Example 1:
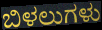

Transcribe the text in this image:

ಬಿಳಲುಗಳು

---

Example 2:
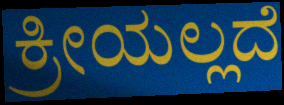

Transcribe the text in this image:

ಕ್ರೀಯಲ್ಲದೆ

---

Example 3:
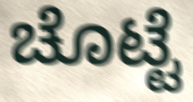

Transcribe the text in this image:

ಚೊಟ್ಟೆ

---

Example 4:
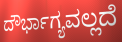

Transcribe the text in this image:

ದೌರ್ಭಾಗ್ಯವಲ್ಲದೆ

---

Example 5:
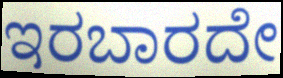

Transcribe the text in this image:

ಇರಬಾರದೇ